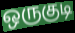
ஒருகுடி